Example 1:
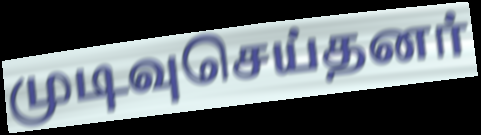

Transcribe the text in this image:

முடிவுசெய்தனர்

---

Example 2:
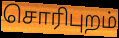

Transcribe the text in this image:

சொரிபுறம்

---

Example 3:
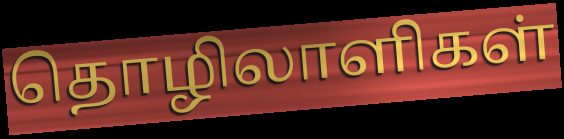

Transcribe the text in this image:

தொழிலாளிகள்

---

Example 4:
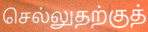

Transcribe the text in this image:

செல்லுதற்குத்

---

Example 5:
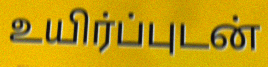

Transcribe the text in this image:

உயிர்ப்புடன்